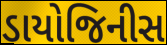
ડાયોજિનીસ